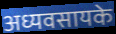
अध्यवसायके